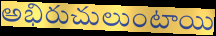
అభిరుచులుంటాయి